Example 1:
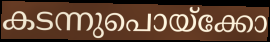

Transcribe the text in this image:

കടന്നുപൊയ്ക്കോ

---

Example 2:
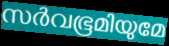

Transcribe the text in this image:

സർവഭൂമിയുമേ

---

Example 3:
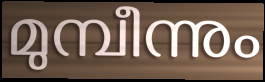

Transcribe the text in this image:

മുമ്പീന്നും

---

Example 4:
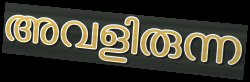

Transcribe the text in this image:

അവളിരുന്ന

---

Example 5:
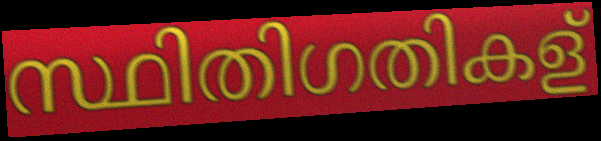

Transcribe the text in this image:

സ്ഥിതിഗതികള്